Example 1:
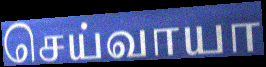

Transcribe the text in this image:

செய்வாயா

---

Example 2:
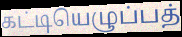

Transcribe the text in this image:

கட்டியெழுப்பத்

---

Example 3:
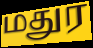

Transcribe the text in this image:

மதுர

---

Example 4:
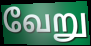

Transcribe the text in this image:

வேறு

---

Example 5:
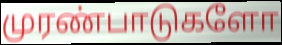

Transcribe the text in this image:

முரண்பாடுகளோ